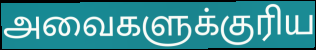
அவைகளுக்குரிய